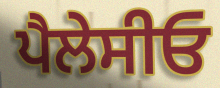
ਪੈਲੇਸੀਓ